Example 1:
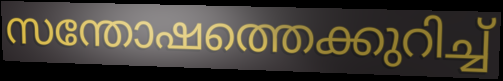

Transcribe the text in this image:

സന്തോഷത്തെക്കുറിച്ച്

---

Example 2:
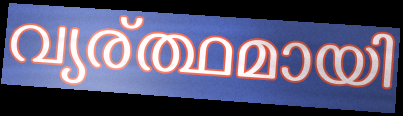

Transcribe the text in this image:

വ്യര്ത്ഥമായി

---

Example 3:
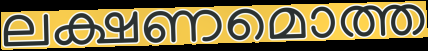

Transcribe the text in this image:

ലക്ഷണമൊത്ത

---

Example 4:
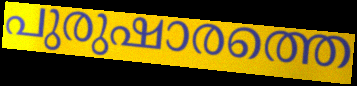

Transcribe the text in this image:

പുരുഷാരത്തെ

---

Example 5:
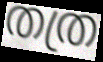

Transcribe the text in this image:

തത്ര